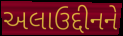
અલાઉદ્દીનને